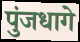
पुंजधागे